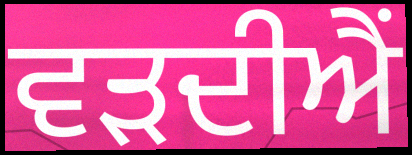
ਵੜਦੀਐਂ